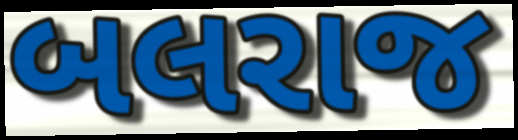
બલરાજ